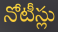
నోటీస్లు